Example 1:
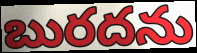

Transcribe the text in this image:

బురదను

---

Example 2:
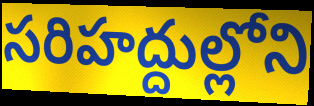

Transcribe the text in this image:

సరిహద్దుల్లోని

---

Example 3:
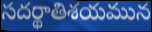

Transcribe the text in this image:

సదర్థాతిశయమున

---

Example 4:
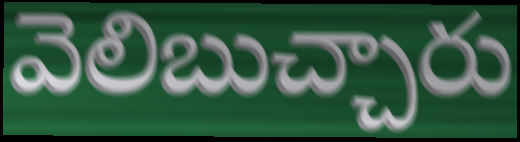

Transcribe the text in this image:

వెలిబుచ్చారు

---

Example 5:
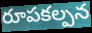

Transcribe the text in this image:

రూపకల్పన